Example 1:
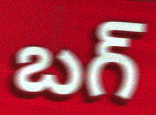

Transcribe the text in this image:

బగ్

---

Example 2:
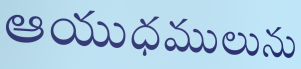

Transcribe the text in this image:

ఆయుధములును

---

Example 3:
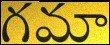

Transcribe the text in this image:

గమా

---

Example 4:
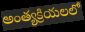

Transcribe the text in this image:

అంత్యక్రియలలో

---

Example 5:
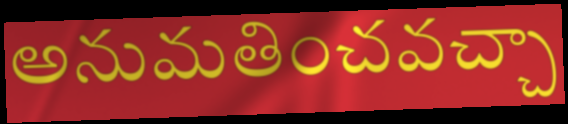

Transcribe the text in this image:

అనుమతించవచ్చా